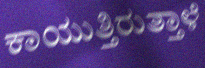
ಕಾಯುತ್ತಿರುತ್ತಾಳೆ